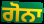
ਗੋਨਾ